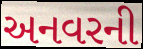
અનવરની